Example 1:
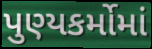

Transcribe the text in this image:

પુણ્યકર્મોમાં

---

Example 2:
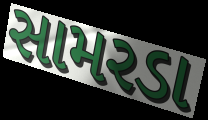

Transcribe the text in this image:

સામરડા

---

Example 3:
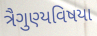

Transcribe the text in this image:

ત્રૈગુણ્યવિષયા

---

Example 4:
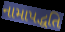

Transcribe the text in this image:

નામાપદ્ધતિ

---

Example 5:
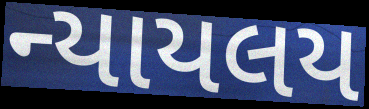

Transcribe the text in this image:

ન્યાયલય